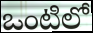
ఒంటిలో